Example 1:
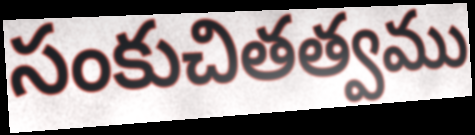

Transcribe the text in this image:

సంకుచితత్వము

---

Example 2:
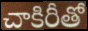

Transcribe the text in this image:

చాకిరీతో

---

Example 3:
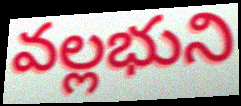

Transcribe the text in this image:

వల్లభుని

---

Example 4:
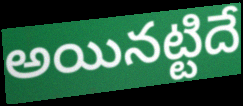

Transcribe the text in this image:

అయినట్టిదే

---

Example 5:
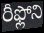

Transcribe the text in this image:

రీఫ్లోని